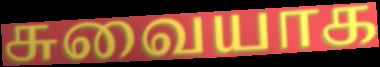
சுவையாக